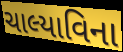
ચાલ્યાવિના